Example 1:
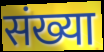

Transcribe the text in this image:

संख्‍या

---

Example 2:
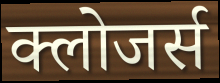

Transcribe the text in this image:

क्लोजर्स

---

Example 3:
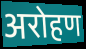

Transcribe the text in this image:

अरोहण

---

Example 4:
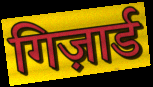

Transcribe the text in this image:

गिज़ार्ड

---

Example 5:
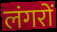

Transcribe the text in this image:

लंगरों